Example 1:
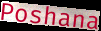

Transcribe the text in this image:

Poshana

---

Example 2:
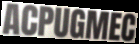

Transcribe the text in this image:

ACPUGMEC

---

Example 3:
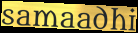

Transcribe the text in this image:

samaadhi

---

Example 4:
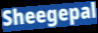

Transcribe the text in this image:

Sheegepal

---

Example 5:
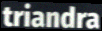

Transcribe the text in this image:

triandra